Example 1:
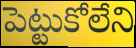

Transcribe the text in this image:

పెట్టుకోలేని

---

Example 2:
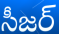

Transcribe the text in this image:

సీజర్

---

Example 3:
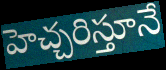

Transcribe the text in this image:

హెచ్చరిస్తూనే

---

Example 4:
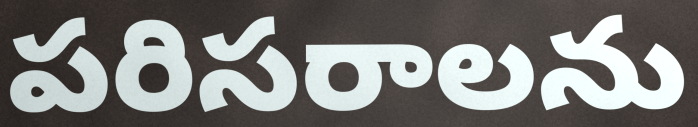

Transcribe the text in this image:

పరిసరాలను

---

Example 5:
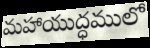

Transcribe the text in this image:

మహాయుద్ధములో